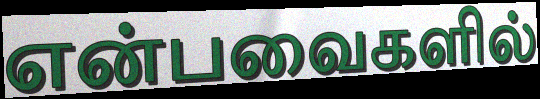
என்பவைகளில்